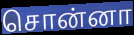
சொன்னா